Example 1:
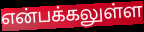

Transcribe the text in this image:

என்பக்கலுள்ள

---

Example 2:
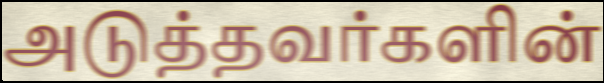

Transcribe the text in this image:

அடுத்தவர்களின்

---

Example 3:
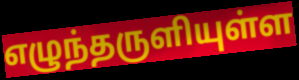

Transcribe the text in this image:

எழுந்தருளியுள்ள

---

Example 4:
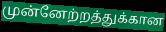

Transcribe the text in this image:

முன்னேற்றத்துக்கான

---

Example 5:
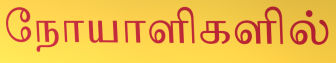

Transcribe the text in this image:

நோயாளிகளில்